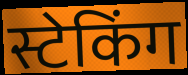
स्टेकिंग